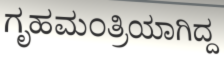
ಗೃಹಮಂತ್ರಿಯಾಗಿದ್ದ